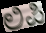
ಲಿಪಿ